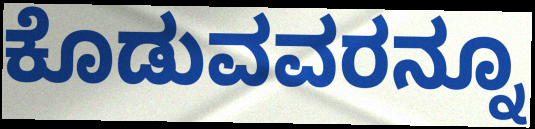
ಕೊಡುವವರನ್ನೂ